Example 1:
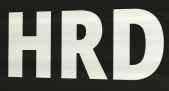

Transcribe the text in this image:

HRD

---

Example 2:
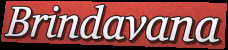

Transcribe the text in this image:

Brindavana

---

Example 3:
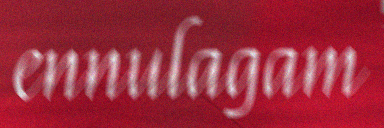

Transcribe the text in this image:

ennulagam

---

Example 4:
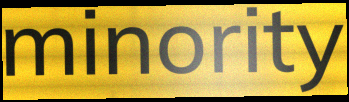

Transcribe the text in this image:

minority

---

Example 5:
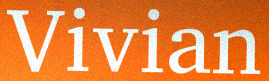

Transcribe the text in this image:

Vivian